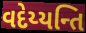
વદેય્યન્તિ